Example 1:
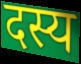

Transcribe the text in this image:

दस्य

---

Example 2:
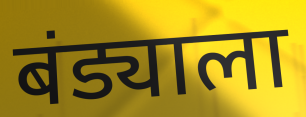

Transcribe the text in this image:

बंड्याला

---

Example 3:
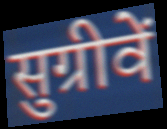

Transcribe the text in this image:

सुग्रीवें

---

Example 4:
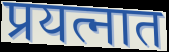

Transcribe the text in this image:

प्रयत्नात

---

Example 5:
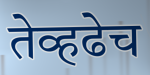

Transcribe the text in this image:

तेव्हढेच